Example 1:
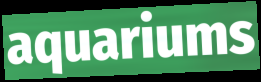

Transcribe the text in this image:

aquariums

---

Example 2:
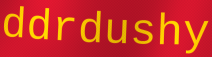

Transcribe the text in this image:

ddrdushy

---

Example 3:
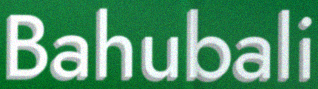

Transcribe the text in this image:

Bahubali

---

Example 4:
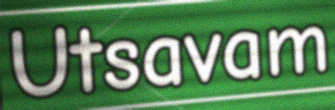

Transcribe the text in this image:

Utsavam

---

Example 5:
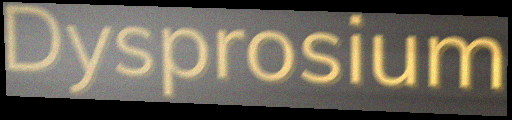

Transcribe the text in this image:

Dysprosium